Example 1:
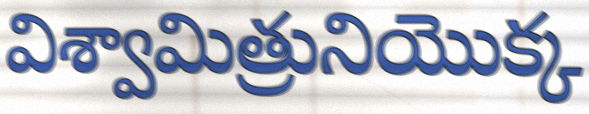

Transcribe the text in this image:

విశ్వామిత్రునియొక్క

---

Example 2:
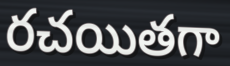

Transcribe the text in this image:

రచయితగా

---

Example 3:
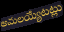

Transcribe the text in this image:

అమలయ్యేటట్లు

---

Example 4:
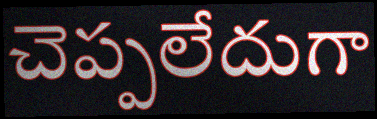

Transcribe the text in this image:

చెప్పలేదుగా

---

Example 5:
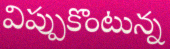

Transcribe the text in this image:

విప్పుకొంటున్న